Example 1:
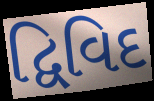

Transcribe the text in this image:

દ્વિવિદ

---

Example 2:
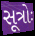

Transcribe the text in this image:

સૂત્રોઃ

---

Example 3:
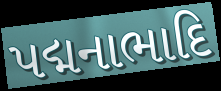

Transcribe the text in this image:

પદ્મનાભાદિ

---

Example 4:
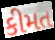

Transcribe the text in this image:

કીમત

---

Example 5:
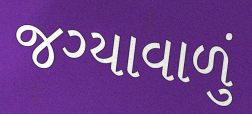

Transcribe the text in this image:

જગ્યાવાળું